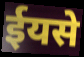
ईयसे